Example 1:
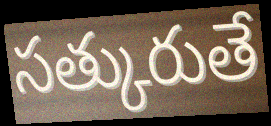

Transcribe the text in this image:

సత్కురుతే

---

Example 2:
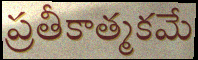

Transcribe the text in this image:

ప్రతీకాత్మకమే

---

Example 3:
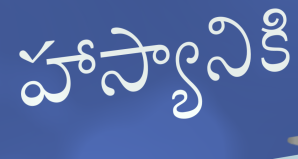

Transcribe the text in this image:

హాస్యానికి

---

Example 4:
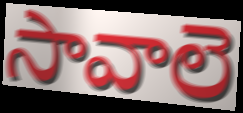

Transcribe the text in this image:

సావాలె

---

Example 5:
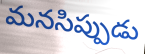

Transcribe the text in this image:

మనసిప్పుడు